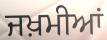
ਜਖ਼ਮੀਆਂ